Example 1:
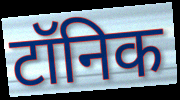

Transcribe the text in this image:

टॉनिक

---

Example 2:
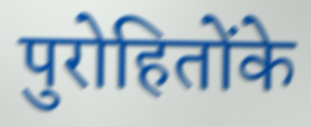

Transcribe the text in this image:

पुरोहितोंके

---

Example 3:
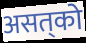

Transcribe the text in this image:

असत्‌को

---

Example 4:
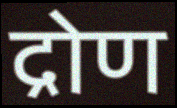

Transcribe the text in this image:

द्रोण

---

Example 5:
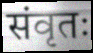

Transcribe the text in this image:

संवृतः